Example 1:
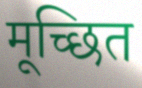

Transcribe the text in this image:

मूच्छित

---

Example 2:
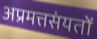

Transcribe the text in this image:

अप्रमत्तसंयतों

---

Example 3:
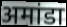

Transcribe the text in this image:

अमांडा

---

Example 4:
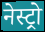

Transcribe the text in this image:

नेस्ट्रो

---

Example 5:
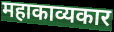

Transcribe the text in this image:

महाकाव्यकार